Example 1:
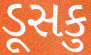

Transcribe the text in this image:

ડૂસકુ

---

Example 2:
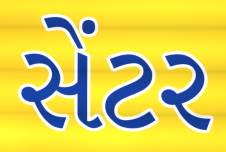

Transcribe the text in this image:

સેંટર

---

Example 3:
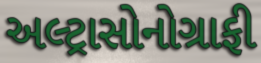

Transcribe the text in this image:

અલ્ટ્રાસોનોગ્રાફી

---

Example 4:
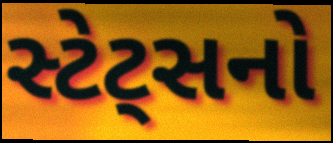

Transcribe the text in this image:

સ્ટેટ્સનો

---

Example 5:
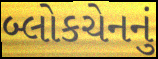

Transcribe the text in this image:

બ્લોકચેનનું